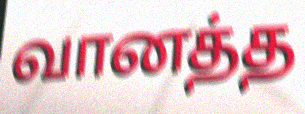
வானத்த